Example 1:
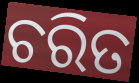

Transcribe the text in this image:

ଚରିତ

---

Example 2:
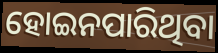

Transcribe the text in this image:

ହୋଇନପାରିଥିବା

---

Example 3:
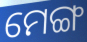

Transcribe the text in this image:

ମେଙ୍ଗ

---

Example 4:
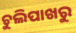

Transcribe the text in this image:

ଚୁଲିପାଖରୁ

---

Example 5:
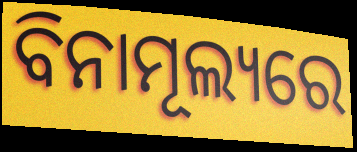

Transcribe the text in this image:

ବିନାମୂଲ୍ୟରେ